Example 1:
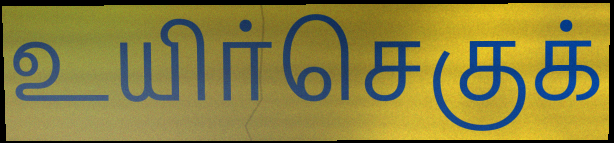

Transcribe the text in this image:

உயிர்செகுக்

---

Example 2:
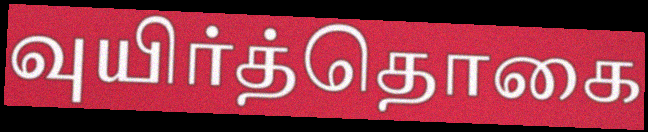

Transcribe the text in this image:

வுயிர்த்தொகை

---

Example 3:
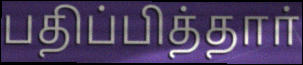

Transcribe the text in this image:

பதிப்பித்தார்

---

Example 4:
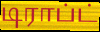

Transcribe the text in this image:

டிராப்ட்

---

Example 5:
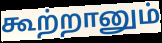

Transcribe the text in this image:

கூற்றானும்